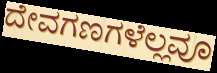
ದೇವಗಣಗಳೆಲ್ಲವೂ